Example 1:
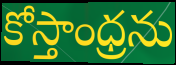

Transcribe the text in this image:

కోస్తాంధ్రను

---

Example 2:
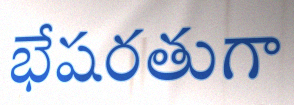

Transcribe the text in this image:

భేషరతుగా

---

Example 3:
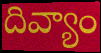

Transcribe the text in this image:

దివ్యాం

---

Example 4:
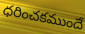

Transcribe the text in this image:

ధరించకముందే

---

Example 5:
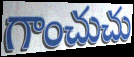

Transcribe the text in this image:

గాంచుచు